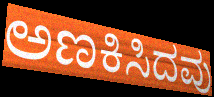
ಅಣಕಿಸಿದವು